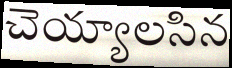
చెయ్యాలసిన